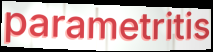
parametritis